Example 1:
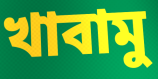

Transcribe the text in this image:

খাবামু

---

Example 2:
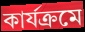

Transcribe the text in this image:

কার্যক্রমে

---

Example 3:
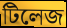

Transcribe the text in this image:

টিলেজ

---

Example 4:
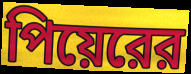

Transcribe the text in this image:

পিয়েরের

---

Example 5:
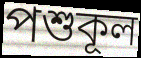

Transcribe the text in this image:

পশুকূল